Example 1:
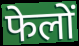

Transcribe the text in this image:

फेलों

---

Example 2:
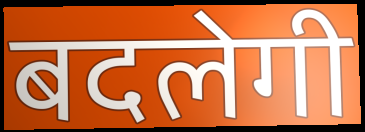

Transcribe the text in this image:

बदलेगी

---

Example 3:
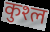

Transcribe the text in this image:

कुश्ल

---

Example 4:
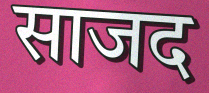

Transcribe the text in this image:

साजद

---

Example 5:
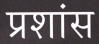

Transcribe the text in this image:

प्रशांस